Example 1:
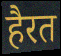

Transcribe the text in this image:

हैरत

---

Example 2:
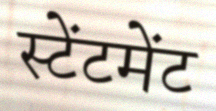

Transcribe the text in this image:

स्टेंटमेंट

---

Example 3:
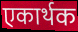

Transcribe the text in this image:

एकार्थक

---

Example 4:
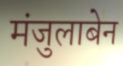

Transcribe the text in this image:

मंजुलाबेन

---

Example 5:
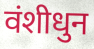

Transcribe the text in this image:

वंशीधुन